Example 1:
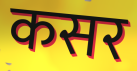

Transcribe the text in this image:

कसर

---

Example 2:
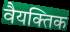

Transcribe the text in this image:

वैयक्तिक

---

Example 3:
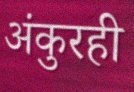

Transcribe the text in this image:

अंकुरही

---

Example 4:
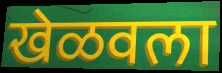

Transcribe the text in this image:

खेळवला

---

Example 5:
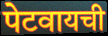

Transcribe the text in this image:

पेटवायची